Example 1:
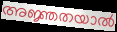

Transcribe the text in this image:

അജ്ഞതയാൽ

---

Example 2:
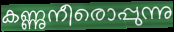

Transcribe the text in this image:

കണ്ണുനീരൊപ്പുന്നു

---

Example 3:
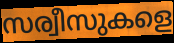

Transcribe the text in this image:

സര്വീസുകളെ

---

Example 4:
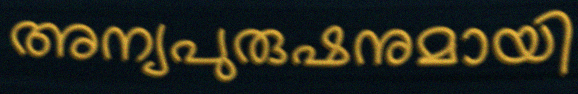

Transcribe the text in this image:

അന്യപുരുഷനുമായി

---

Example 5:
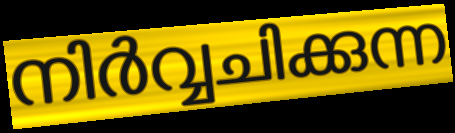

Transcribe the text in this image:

നിർവ്വചിക്കുന്ന